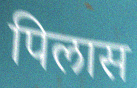
पिलास